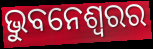
ଭୁବନେଶ୍ବରର